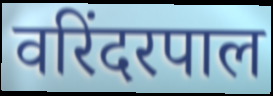
वरिंदरपाल